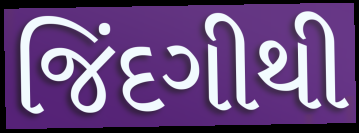
જિંદગીથી